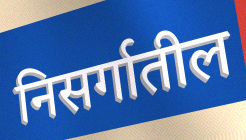
निसर्गातील